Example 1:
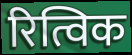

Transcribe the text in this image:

रित्विक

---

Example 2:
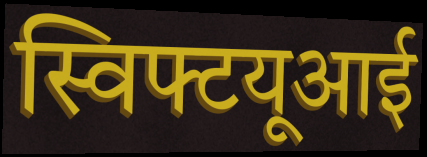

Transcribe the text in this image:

स्विफ्टयूआई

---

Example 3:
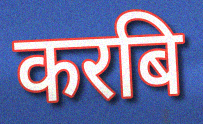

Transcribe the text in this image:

करबि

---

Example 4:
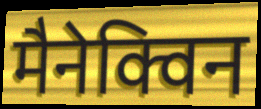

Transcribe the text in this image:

मैनेक्विन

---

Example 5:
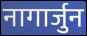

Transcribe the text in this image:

नागार्जुन